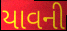
યાવની